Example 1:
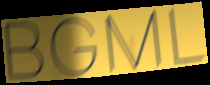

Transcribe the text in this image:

BGML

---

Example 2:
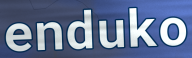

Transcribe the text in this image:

enduko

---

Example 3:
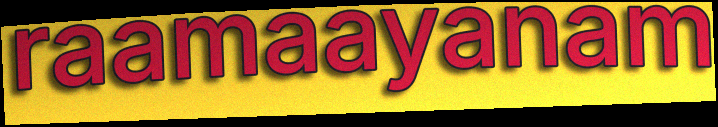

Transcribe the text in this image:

raamaayanam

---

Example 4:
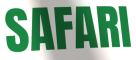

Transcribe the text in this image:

SAFARI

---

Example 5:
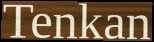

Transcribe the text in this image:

Tenkan